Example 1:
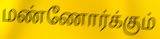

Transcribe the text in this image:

மண்ணோர்க்கும்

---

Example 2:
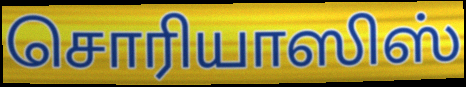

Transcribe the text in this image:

சொரியாஸிஸ்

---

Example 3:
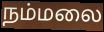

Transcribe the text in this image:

நம்மலை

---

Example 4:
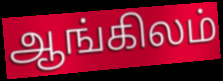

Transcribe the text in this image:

ஆங்கிலம்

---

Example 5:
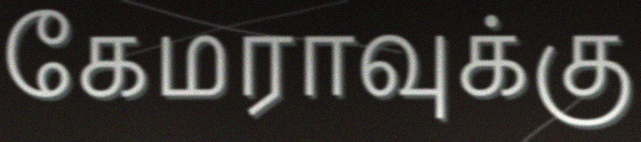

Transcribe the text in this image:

கேமராவுக்கு